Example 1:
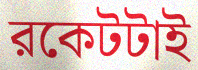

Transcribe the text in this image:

রকেটটাই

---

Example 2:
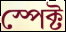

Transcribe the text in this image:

স্পেক্ট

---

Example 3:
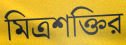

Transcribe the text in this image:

মিত্রশক্তির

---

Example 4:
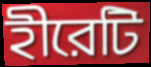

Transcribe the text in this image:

হীরেটি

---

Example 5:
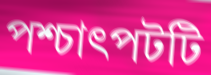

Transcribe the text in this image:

পশ্চাৎপটটি